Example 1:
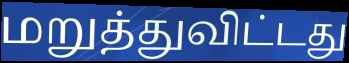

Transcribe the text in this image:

மறுத்துவிட்டது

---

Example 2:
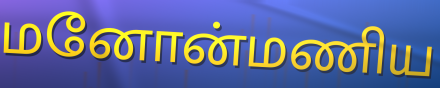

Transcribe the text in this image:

மனோன்மணிய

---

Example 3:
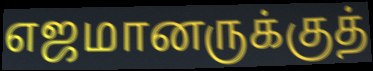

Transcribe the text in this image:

எஜமானருக்குத்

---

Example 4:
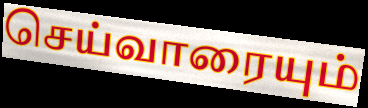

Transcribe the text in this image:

செய்வாரையும்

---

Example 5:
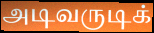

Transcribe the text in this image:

அடிவருடிக்